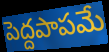
పెద్దపాపమే